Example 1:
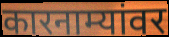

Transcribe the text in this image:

कारनाम्यांवर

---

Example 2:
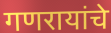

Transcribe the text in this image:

गणरायांचे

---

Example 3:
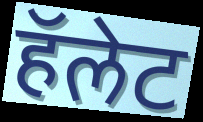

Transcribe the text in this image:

हॅलेट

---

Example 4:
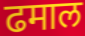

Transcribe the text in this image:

ढमाल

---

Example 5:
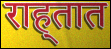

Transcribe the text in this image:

राह्तात